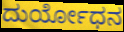
ದುರ್ಯೋಧನ